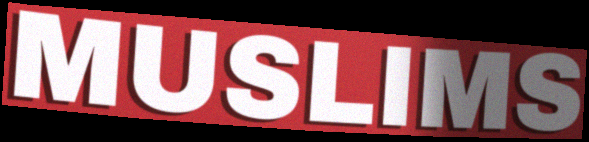
MUSLIMS